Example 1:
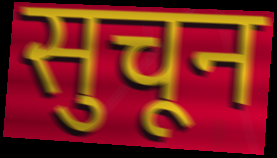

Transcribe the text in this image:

सुचून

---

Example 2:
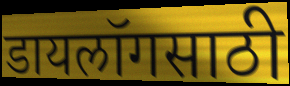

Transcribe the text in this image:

डायलॉगसाठी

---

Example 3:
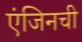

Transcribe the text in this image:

एंजिनची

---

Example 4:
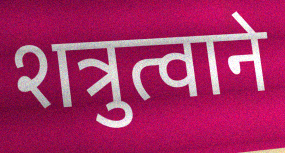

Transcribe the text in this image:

शत्रुत्वाने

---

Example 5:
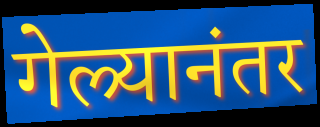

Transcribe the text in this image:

गेल्यानंतर